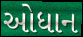
ઓધાન